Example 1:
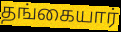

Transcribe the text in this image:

தங்கையார்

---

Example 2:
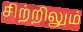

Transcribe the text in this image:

சிற்றிலும்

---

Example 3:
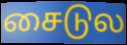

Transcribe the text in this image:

சைடுல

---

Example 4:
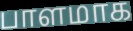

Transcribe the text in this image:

பாளமாக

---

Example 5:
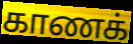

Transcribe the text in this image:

காணக்